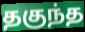
தகுந்த